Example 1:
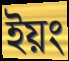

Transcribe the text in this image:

ইয়ং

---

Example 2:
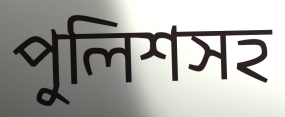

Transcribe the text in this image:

পুলিশসহ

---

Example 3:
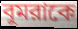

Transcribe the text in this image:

বুমরাকে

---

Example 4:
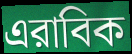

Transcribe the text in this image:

এরাবিক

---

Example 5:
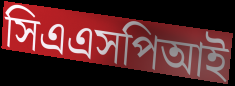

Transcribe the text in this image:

সিএএসপিআই